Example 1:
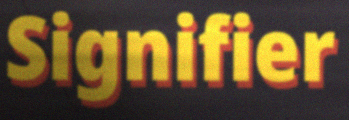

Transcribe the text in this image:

Signifier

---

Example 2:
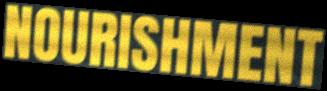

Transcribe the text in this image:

NOURISHMENT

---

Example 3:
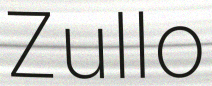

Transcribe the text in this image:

Zullo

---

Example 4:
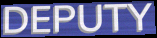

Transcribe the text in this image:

DEPUTY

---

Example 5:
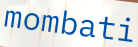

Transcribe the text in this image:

mombati